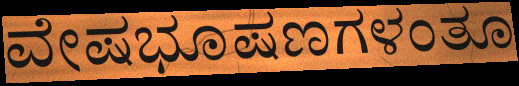
ವೇಷಭೂಷಣಗಳಂತೂ